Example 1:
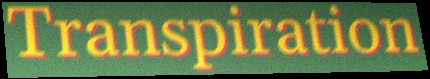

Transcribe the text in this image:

Transpiration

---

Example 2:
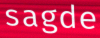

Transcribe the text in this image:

sagde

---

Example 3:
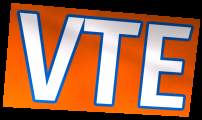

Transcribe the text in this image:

VTE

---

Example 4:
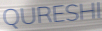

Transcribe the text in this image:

QURESHI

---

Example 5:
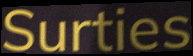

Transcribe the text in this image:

Surties